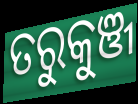
ତରୁକୁଞ୍ଜ